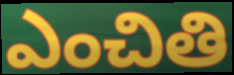
ఎంచితి